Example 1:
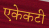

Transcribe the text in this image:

एकेकटी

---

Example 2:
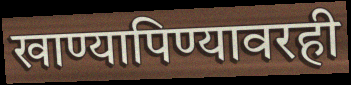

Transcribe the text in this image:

खाण्यापिण्यावरही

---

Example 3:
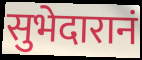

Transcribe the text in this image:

सुभेदारानं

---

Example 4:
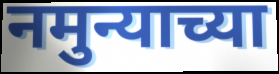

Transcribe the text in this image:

नमुन्याच्या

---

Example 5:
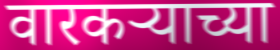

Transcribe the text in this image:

वारकऱ्याच्या